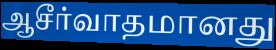
ஆசீர்வாதமானது